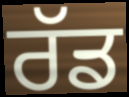
ਰੱਡ